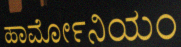
ಹಾರ್ಮೋನಿಯಂ